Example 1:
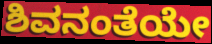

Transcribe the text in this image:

ಶಿವನಂತೆಯೇ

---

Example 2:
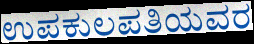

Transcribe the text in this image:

ಉಪಕುಲಪತಿಯವರ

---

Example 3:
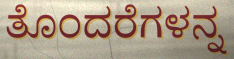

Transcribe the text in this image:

ತೊಂದರೆಗಳನ್ನ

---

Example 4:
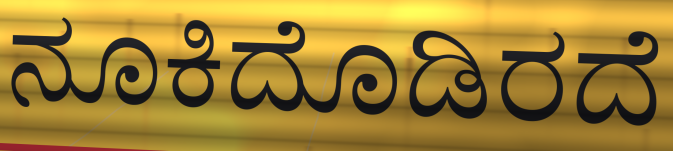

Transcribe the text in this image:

ನೂಕಿದೊಡಿರದೆ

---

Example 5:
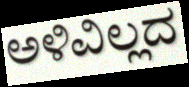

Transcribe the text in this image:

ಅಳಿವಿಲ್ಲದ